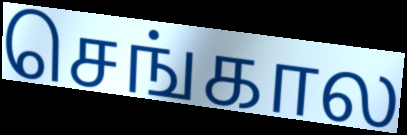
செங்கால